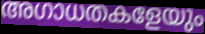
അഗാധതകളേയും